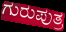
ಗುರುಪುತ್ರ